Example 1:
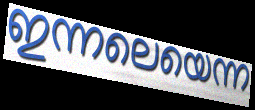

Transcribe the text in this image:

ഇന്നലെയെന്ന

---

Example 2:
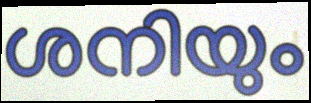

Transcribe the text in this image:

ശനിയും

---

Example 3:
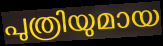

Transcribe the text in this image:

പുത്രിയുമായ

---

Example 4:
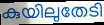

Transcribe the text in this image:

കുയിലുതേടി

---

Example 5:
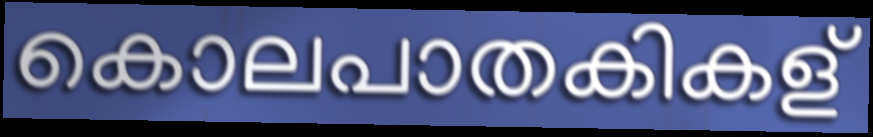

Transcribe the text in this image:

കൊലപാതകികള്